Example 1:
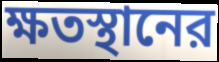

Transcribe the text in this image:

ক্ষতস্থানের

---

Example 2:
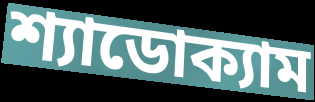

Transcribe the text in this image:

শ্যাডোক্যাম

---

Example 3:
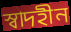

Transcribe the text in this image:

স্বাদহীন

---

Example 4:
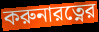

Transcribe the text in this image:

করুনারত্নের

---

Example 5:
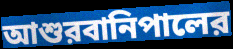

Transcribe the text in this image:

আশুরবানিপালের